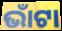
ଭାଁଟା